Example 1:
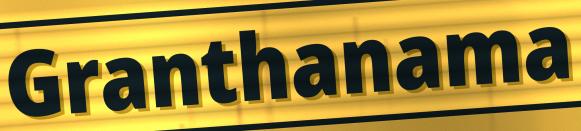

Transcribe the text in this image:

Granthanama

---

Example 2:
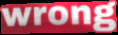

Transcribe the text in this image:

wrong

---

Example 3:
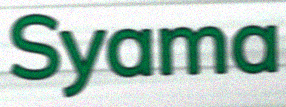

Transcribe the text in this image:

Syama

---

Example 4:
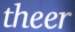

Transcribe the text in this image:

theer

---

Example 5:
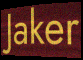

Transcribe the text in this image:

Jaker